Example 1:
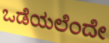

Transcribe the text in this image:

ಒಡೆಯಲೆಂದೇ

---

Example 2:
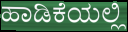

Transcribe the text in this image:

ಹಾಡಿಕೆಯಲ್ಲಿ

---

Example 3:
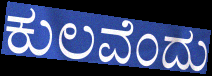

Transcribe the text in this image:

ಕುಲವೆಂದು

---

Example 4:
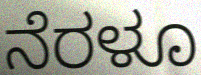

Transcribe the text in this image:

ನೆರಳೂ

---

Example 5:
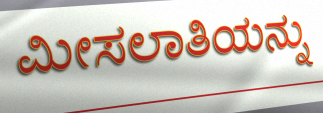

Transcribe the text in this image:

ಮೀಸಲಾತಿಯನ್ನು